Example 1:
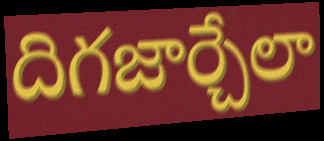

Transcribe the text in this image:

దిగజార్చేలా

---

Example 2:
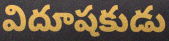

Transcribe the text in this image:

విదూషకుడు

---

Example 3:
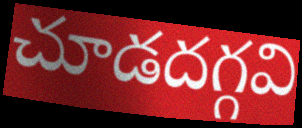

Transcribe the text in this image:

చూడదగ్గవి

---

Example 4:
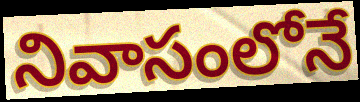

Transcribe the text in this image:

నివాసంలోనే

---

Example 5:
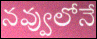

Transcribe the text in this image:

నవ్వులోనే